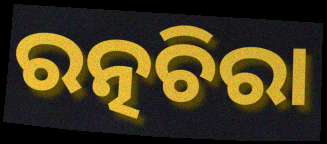
ରତ୍ନଚିରା